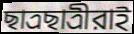
ছাত্রছাত্রীরাই